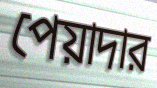
পেয়াদার